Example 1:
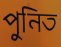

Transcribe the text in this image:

পুনিত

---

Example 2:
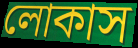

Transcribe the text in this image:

লোকাস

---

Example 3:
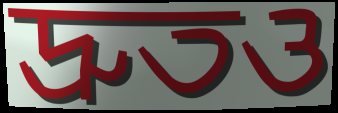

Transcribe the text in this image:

দ্রুতও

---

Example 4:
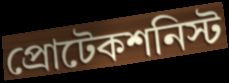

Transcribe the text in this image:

প্রোটেকশনিস্ট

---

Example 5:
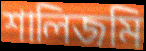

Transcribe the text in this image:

শালিজমি